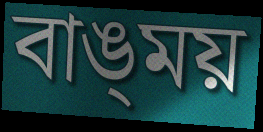
বাঙ্‌ময়